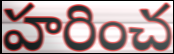
హరించ